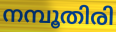
നമ്പൂതിരി